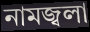
নামজ্বলা